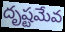
దృష్టమేవ